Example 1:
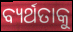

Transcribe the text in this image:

ବ୍ୟର୍ଥତାକୁ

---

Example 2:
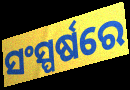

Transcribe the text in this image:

ସଂସ୍ପର୍ଷରେ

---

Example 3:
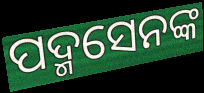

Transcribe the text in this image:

ପଦ୍ମସେନଙ୍କ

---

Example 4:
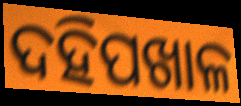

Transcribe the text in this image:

ଦହିପଖାଳ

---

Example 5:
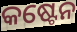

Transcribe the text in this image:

କଷ୍ଟେନ